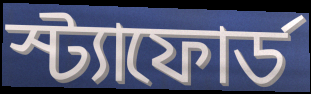
স্ট্যাফোর্ড